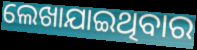
ଲେଖାଯାଇଥିବାର